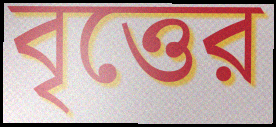
বৃত্তের